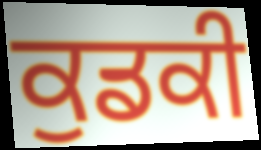
ਕੁਡਕੀ